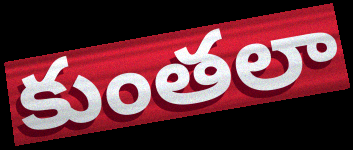
కుంతలా